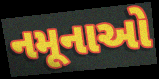
નમૂનાઓ